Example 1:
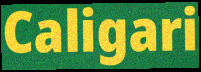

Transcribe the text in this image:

Caligari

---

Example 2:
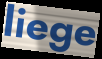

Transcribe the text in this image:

liege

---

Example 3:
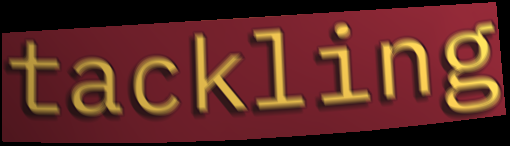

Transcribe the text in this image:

tackling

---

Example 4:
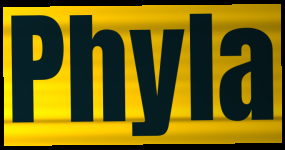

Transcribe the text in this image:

Phyla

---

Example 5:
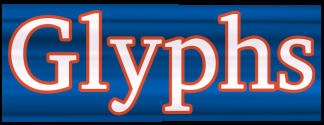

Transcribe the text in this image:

Glyphs